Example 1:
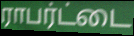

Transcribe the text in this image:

ராபர்ட்டை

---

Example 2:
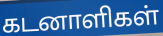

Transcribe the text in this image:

கடனாளிகள்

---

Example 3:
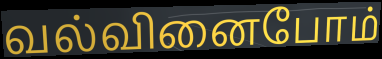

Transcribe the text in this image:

வல்வினைபோம்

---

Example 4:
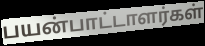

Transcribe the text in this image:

பயன்பாட்டாளர்கள்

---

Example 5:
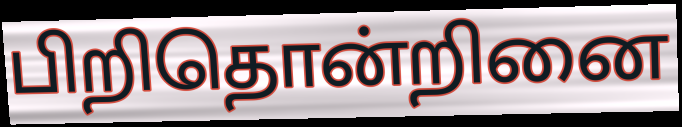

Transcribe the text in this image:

பிறிதொன்றினை